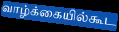
வாழ்க்கையில்கூட